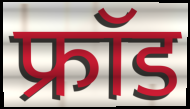
फ्रॉड